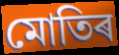
মোতিৰ